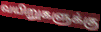
வயிறுகளுக்கு